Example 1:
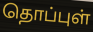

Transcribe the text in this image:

தொப்புள்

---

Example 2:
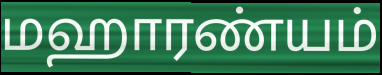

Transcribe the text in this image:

மஹாரண்யம்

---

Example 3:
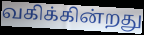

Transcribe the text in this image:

வகிக்கின்றது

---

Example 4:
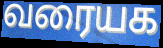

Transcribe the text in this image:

வரையக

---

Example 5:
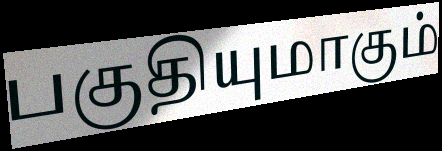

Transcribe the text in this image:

பகுதியுமாகும்